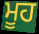
ਮੂਹ